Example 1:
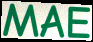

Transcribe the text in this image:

MAE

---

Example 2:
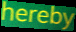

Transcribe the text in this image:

hereby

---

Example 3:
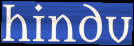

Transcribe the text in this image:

hindu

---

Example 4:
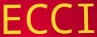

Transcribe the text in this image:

ECCI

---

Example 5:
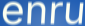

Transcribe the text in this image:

enru